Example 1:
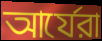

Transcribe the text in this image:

আর্যেরা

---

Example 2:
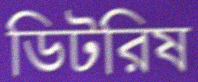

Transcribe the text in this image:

ডিটরিষ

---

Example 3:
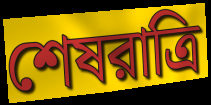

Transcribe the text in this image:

শেষরাত্রি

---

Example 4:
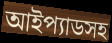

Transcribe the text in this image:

আইপ্যাডসহ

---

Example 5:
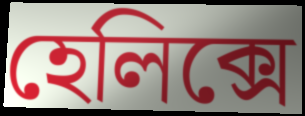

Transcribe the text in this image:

হেলিক্সে